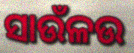
ସାଉଁଳଉ